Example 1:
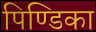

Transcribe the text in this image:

पिण्डिका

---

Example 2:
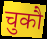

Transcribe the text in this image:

चुकौ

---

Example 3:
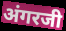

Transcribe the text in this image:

अंगरजी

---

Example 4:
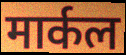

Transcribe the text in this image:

मार्कल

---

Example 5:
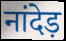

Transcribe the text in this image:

नांदेड़